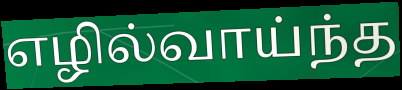
எழில்வாய்ந்த